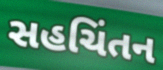
સહચિંતન